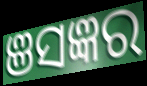
ଞସଜ୍ଞର